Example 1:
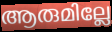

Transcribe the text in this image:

ആരുമില്ലേ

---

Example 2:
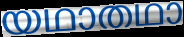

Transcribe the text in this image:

യഥാതഥാ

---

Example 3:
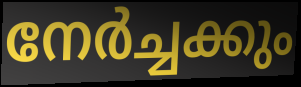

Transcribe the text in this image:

നേർച്ചക്കും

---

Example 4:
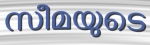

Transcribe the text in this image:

സീമയുടെ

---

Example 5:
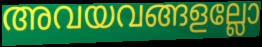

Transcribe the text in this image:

അവയവങ്ങളല്ലോ